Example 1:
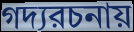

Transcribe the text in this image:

গদ্যরচনায়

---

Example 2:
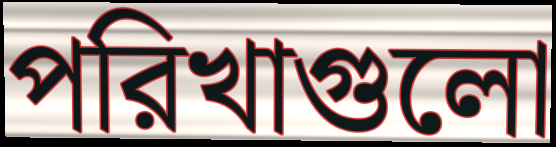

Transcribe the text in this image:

পরিখাগুলো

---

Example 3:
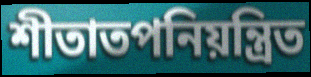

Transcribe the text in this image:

শীতাতপনিয়ন্ত্রিত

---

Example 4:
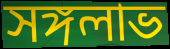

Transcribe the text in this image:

সঙ্গলাভ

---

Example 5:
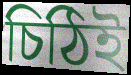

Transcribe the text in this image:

চিঠিই